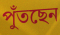
পুঁতছেন